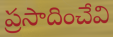
ప్రసాదించేవి